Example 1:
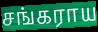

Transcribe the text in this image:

சங்கராய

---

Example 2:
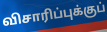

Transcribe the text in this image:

விசாரிப்புக்குப்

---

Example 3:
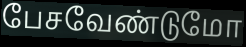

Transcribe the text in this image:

பேசவேண்டுமோ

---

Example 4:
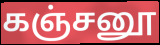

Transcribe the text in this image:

கஞ்சனூ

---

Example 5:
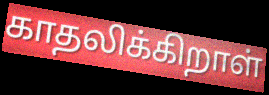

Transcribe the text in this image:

காதலிக்கிறாள்